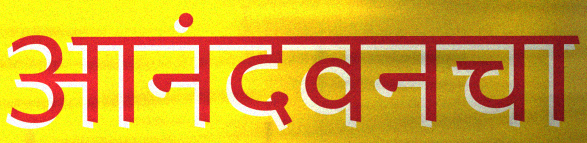
आनंदवनचा